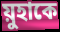
য়ুহাকে